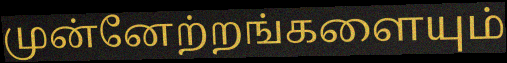
முன்னேற்றங்களையும்